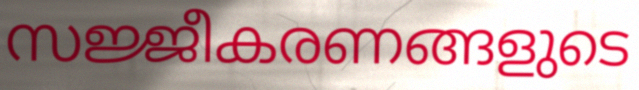
സജ്ജീകരണങ്ങളുടെ